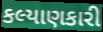
કલ્યાણકારી